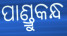
ପାଣ୍ଡ୍ରୁକନ୍ଧ